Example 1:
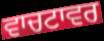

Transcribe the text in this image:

ਵਾਚਟਾਵਰ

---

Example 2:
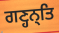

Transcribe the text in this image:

ਗਣ੍ਹਨ੍ਤਿ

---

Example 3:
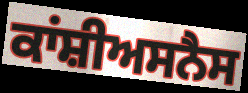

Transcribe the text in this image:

ਕਾਂਸ਼ੀਅਸਨੈਸ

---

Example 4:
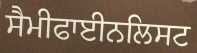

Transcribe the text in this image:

ਸੈਮੀਫਾਈਨਲਿਸਟ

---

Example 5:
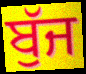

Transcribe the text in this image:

ਬੁੱਜ